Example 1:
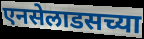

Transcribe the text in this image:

एनसेलाडसच्या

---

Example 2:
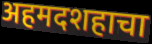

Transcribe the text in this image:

अहमदशहाचा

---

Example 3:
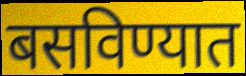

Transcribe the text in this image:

बसविण्यात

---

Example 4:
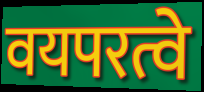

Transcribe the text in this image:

वयपरत्वे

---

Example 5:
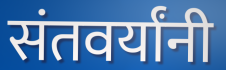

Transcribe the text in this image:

संतवर्यांनी